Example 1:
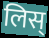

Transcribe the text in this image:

लिस्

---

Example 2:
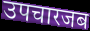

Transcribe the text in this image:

उपचारजब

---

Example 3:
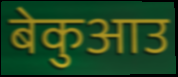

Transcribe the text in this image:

बेकुआउ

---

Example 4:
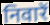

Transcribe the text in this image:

निवारें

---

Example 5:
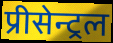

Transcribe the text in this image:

प्रीसेन्ट्रल